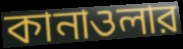
কানাওলার